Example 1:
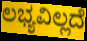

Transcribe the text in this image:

ಲಭ್ಯವಿಲ್ಲದೆ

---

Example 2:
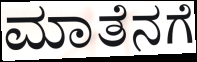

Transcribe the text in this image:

ಮಾತೆನಗೆ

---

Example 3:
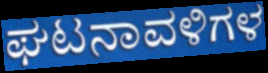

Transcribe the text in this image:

ಘಟನಾವಳಿಗಳ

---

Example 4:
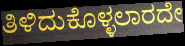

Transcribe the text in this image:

ತಿಳಿದುಕೊಳ್ಳಲಾರದೇ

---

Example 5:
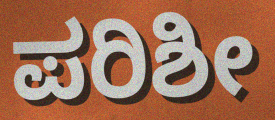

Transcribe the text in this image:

ಪರಿಶೀ